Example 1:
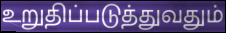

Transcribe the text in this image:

உறுதிப்படுத்துவதும்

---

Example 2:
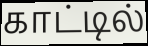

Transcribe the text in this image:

காட்டில்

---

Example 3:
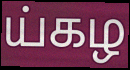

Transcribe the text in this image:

ய்கழ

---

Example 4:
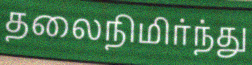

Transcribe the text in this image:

தலைநிமிர்ந்து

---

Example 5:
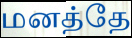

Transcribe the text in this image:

மனத்தே